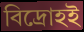
বিদ্রোহই